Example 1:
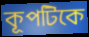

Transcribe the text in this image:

কূপটিকে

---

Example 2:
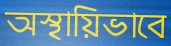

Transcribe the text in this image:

অস্থায়িভাবে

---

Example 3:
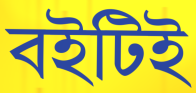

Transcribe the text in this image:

বইটিই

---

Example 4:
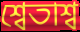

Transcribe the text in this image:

শ্বেতাশ্ব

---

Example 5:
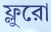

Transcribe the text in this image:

ফ্লুরো